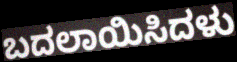
ಬದಲಾಯಿಸಿದಳು